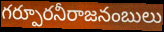
గర్పూరనీరాజనంబులు